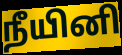
நீயினி